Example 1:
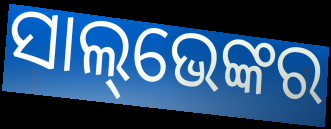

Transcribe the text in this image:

ସାଲ୍‌ଭେଙ୍କର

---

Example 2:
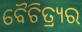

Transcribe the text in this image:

ବୈଚିତ୍ର୍ୟର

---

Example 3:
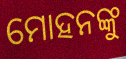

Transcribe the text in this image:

ମୋହନଙ୍କୁ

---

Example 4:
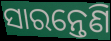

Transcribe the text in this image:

ସାରନ୍ତେଣି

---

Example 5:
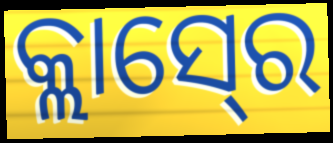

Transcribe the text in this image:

କ୍ଲାସ୍‍ରେ